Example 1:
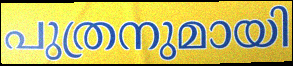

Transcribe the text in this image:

പുത്രനുമായി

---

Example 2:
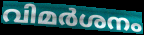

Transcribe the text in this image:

വിമർശനം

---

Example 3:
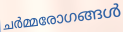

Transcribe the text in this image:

ചർമ്മരോഗങ്ങൾ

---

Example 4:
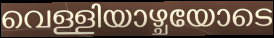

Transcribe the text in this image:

വെള്ളിയാഴ്ചയോടെ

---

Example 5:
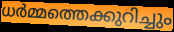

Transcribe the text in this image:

ധർമ്മത്തെക്കുറിച്ചും